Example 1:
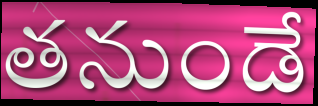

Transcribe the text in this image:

తనుండే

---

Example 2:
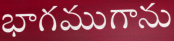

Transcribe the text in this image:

భాగముగాను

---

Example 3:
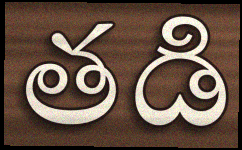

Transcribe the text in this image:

తడి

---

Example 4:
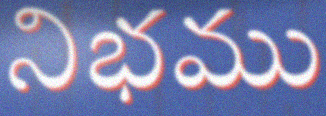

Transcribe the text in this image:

నిభము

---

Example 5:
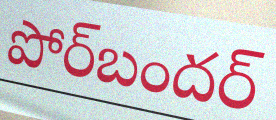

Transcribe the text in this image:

పోర్‌బందర్